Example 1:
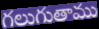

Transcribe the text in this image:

గలుగుతాము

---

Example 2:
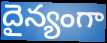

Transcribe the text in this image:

దైన్యంగా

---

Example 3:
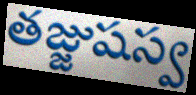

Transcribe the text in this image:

తజ్జుషస్వ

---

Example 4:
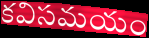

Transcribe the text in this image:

కవిసమయం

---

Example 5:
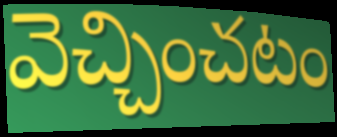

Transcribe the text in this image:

వెచ్చించటం